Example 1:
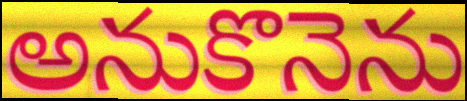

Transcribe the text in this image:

అనుకొనెను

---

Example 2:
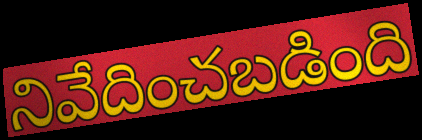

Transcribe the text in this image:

నివేదించబడింది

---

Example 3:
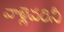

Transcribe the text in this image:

వాళ్లెవరినీ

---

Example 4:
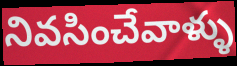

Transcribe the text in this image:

నివసించేవాళ్ళు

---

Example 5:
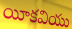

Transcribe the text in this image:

యీకవియు